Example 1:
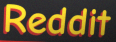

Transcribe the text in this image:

Reddit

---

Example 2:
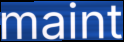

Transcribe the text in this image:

maint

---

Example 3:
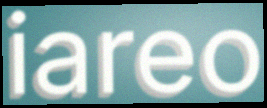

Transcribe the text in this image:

iareo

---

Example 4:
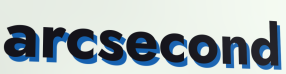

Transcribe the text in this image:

arcsecond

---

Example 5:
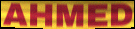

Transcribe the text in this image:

AHMED